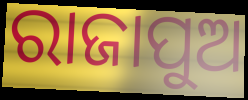
ରାଜାପୁଅ